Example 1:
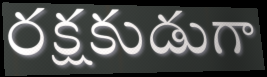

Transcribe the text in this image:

రక్షకుడుగా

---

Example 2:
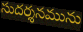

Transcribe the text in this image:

సుదర్శనమును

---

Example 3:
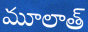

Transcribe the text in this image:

మూలాత్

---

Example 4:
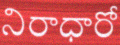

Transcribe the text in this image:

నిరాధారో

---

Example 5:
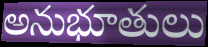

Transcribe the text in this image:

అనుభూతులు